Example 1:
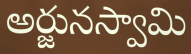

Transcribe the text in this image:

అర్జునస్వామి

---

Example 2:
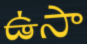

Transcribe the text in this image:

ఉసా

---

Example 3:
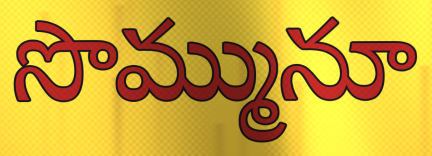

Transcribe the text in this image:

సొమ్మునూ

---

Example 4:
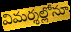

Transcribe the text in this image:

విమర్శల్లోనూ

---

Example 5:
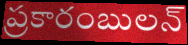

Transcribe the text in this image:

ప్రకారంబులన్